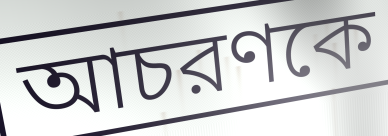
আচরণকে